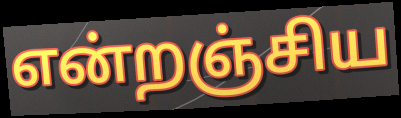
என்றஞ்சிய